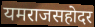
यमराजसहोदर